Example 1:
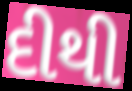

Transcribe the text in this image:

દીથી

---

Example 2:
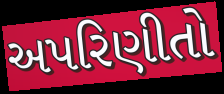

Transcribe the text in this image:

અપરિણીતો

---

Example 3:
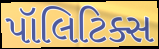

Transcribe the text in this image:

પૉલિટિક્સ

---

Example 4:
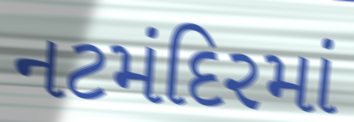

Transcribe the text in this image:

નટમંદિરમાં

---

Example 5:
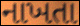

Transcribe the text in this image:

નાખતા